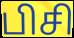
பிசி